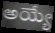
అయ్యే